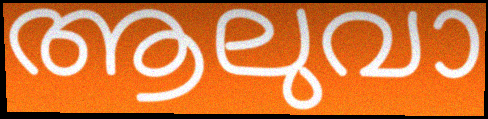
ആലുവാ